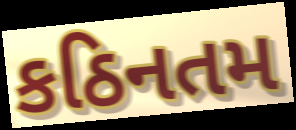
કઠિનતમ